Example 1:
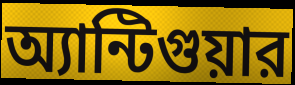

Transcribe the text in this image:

অ্যান্টিগুয়ার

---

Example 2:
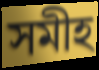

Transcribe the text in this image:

সমীহ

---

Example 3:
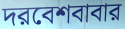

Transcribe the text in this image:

দরবেশবাবার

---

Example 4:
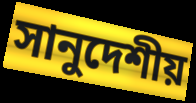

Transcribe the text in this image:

সানুদেশীয়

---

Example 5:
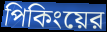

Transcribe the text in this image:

পিকিংয়ের